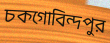
চকগোবিন্দপুর